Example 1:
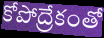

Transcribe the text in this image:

కోపోద్రేకంతో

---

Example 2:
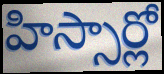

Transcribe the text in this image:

హిస్సార్లో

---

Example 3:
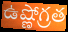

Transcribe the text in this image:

ఉష్ణోగ్రత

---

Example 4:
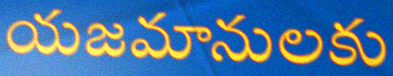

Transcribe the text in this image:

యజమానులకు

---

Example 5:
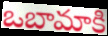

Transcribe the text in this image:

ఒబామాకి